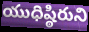
యుధిష్ఠిరుని